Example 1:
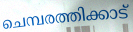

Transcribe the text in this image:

ചെമ്പരത്തിക്കാട്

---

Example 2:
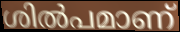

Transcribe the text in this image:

ശിൽപമാണ്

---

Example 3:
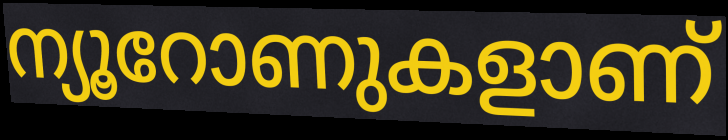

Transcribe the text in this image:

ന്യൂറോണുകളാണ്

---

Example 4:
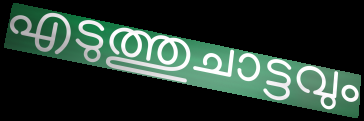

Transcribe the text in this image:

എടുത്തുചാട്ടവും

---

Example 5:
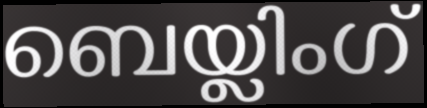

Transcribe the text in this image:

ബെയ്ലിംഗ്